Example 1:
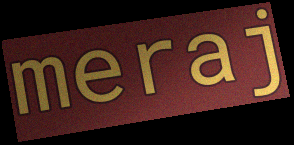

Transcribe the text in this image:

meraj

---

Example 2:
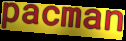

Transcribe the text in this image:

pacman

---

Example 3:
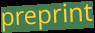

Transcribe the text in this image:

preprint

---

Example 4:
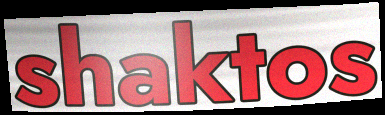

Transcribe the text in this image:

shaktos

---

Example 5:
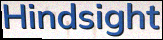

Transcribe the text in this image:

Hindsight